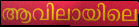
ആവിലായിലെ